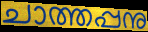
ചാത്തപ്പനു